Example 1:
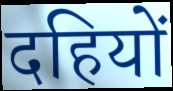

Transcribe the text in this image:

दहियों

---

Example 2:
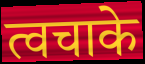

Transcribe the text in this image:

त्वचाके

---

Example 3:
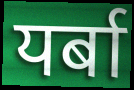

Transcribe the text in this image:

यर्बा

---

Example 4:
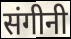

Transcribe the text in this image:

संगीनी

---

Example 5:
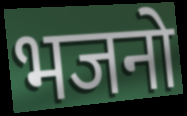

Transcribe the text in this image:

भजनो